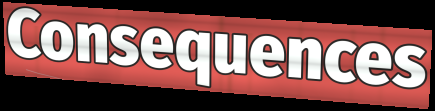
Consequences